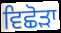
ਵਿਛੋੜਾ